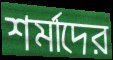
শর্মাদের